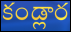
కండ్లార